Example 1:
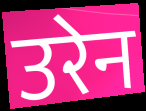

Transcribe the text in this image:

उरेन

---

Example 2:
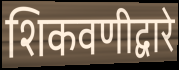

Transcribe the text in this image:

शिकवणीद्वारे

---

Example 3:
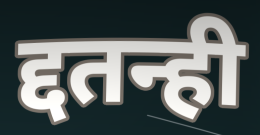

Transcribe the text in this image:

द्दतन्ही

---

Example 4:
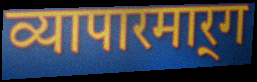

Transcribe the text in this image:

व्यापारमार्ग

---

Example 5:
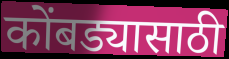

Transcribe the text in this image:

कोंबड्यासाठी